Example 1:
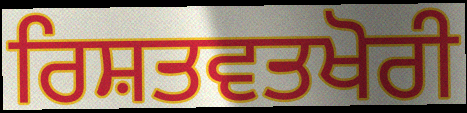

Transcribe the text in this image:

ਰਿਸ਼ਤਵਤਖੋਰੀ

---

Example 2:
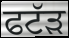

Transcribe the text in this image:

ਫਟੱੜ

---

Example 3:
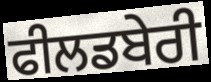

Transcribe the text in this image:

ਫੀਲਡਬੇਰੀ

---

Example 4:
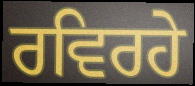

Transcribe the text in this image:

ਰਵਿਰਹੇ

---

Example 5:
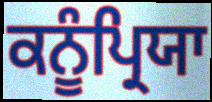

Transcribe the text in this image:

ਕਨੂੰਪ੍ਰਿਯਾ